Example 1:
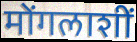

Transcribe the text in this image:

मोंगलाशीं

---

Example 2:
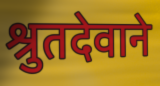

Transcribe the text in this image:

श्रुतदेवाने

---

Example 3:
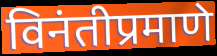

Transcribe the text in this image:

विनंतीप्रमाणे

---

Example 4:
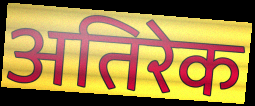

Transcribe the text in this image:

अतिरेक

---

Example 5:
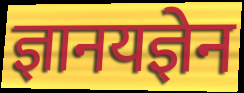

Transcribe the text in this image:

ज्ञानयज्ञेन